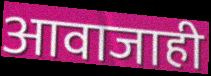
आवाजाही